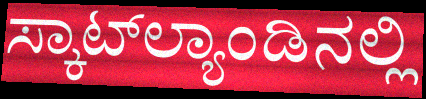
ಸ್ಕಾಟ್‌ಲ್ಯಾಂಡಿನಲ್ಲಿ